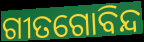
ଗୀତଗୋବିନ୍ଦ